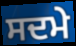
ਸਦਮੇ